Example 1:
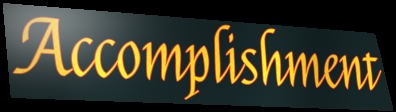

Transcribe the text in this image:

Accomplishment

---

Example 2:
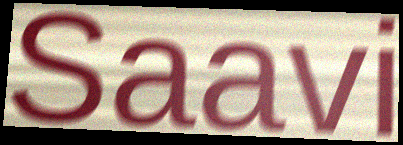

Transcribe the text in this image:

Saavi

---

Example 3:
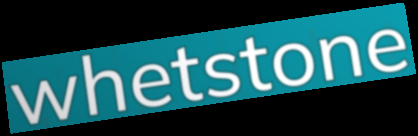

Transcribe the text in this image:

whetstone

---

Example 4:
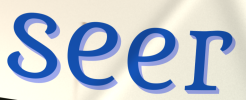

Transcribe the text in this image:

seer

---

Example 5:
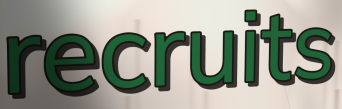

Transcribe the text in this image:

recruits